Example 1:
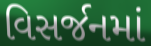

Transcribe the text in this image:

વિસર્જનમાં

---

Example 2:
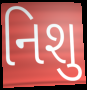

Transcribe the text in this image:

નિશુ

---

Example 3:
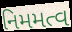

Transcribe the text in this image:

નિમમત્વ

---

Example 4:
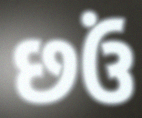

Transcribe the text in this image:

છઉં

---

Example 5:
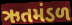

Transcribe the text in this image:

ઋતમંડળ